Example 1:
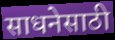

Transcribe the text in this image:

साधनेसाठी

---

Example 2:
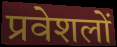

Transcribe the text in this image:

प्रवेशलों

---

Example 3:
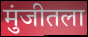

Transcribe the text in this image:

मुंजीतला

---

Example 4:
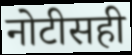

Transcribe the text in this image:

नोटीसही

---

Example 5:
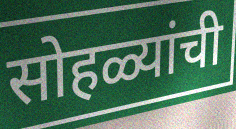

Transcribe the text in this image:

सोहळ्यांची